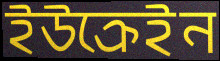
ইউক্রেইন